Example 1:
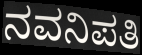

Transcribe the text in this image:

ನವನಿಪತಿ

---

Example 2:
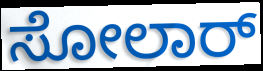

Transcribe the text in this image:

ಸೋಲಾರ್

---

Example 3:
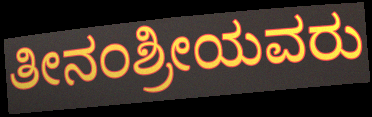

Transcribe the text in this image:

ತೀನಂಶ್ರೀಯವರು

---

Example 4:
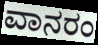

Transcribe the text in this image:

ವಾನರಂ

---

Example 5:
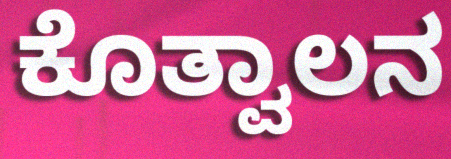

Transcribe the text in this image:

ಕೊತ್ವಾಲನ